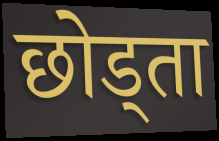
छोड्ता